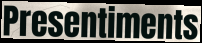
Presentiments